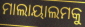
ମାଲାୟାଲମକୁ